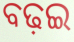
ବଢ଼ଇ